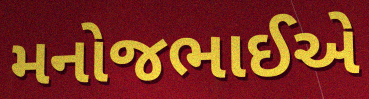
મનોજભાઈએ